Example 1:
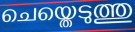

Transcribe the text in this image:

ചെയ്തെടുത്തു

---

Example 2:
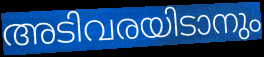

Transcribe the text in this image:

അടിവരയിടാനും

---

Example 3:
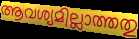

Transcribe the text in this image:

ആവശ്യമില്ലാത്തതു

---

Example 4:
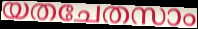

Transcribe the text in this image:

യതചേതസാം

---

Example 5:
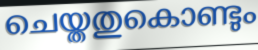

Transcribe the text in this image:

ചെയ്തതുകൊണ്ടും